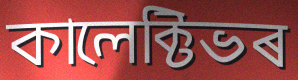
কালেক্টিভৰ